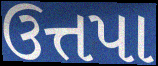
ઉત્તપા